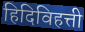
हिदिविहत्ती